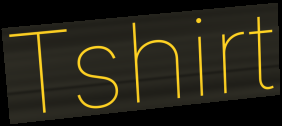
Tshirt